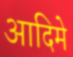
आदिमे